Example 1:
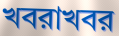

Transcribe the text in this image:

খবরাখবর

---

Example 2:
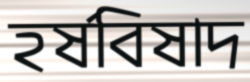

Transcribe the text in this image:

হর্ষবিষাদ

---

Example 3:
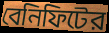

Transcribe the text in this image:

বেনিফিটের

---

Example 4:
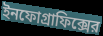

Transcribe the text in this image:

ইনফোগ্রাফিক্সের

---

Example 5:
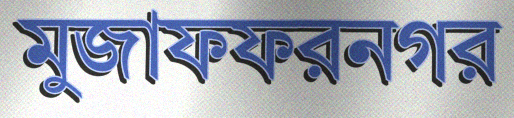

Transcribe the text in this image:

মুজাফফরনগর